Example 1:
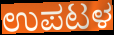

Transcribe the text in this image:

ಉಪಟಳ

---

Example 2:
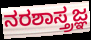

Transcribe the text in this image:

ನರಶಾಸ್ತ್ರಜ್ಞ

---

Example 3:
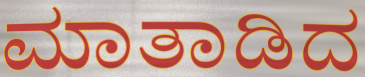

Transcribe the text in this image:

ಮಾತಾಡಿದ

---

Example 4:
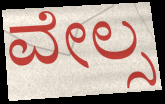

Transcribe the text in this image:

ವೇಲ್ಸ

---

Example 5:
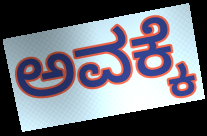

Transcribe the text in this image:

ಅವಕ್ಕೆ